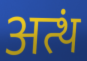
अत्थं